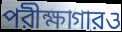
পরীক্ষাগারও